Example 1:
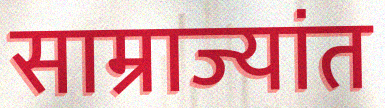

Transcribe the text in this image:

साम्राज्यांत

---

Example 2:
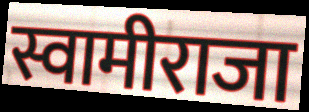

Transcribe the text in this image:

स्वामीराजा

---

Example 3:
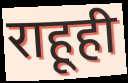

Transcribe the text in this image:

राहूही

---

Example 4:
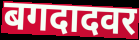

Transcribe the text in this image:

बगदादवर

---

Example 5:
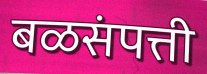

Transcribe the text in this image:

बळसंपत्ती